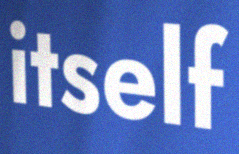
itself